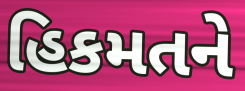
હિકમતને